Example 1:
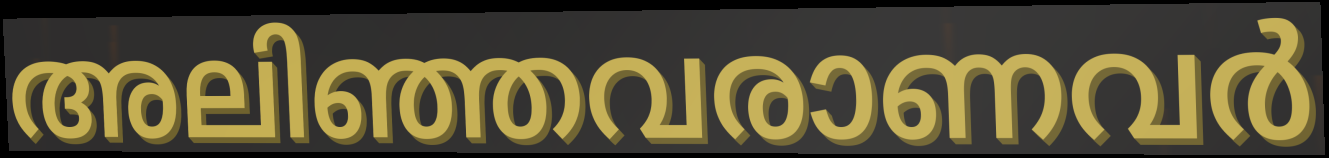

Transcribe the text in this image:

അലിഞ്ഞവരാണവർ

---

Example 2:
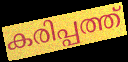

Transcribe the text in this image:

കരിപ്പത്ത്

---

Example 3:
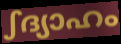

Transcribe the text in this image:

ഽദ്യാഹം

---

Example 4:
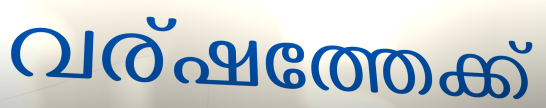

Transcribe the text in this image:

വര്ഷത്തേക്ക്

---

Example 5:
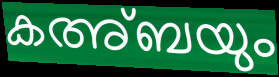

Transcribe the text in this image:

കഅ്ബയും